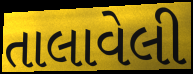
તાલાવેલી